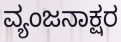
ವ್ಯಂಜನಾಕ್ಷರ